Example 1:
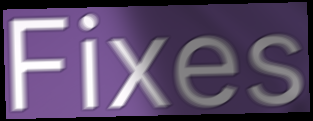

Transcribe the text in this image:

Fixes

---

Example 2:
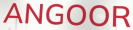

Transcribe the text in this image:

ANGOOR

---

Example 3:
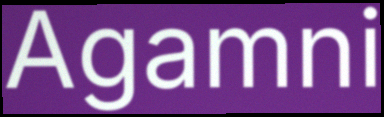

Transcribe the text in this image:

Agamni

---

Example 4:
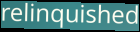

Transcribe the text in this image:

relinquished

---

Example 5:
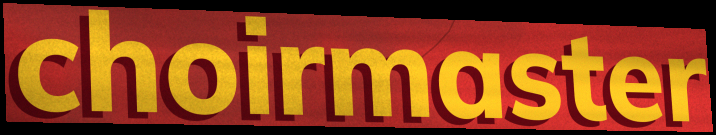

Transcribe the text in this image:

choirmaster